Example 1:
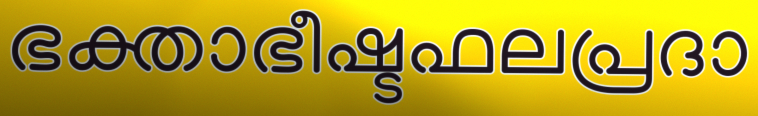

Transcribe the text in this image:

ഭക്താഭീഷ്ടഫലപ്രദാ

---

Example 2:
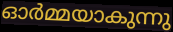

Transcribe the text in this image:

ഓർമ്മയാകുന്നു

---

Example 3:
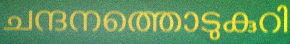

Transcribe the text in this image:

ചന്ദനത്തൊടുകുറി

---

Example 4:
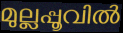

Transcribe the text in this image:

മുല്ലപ്പൂവിൽ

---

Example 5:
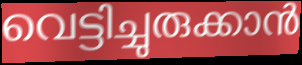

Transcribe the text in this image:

വെട്ടിച്ചുരുക്കാൻ